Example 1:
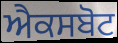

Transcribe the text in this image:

ਐਕਸਬੋਟ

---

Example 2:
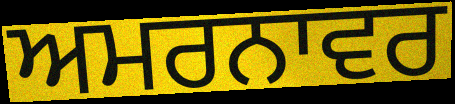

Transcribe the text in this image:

ਅਮਰਨਾਵਰ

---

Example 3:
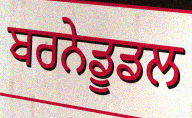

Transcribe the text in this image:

ਬਰਨੇਡੂਡਲ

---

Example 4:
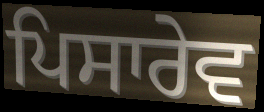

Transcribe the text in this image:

ਪਿਸਾਰੇਵ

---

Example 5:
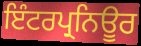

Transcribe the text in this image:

ਇੰਟਰਪ੍ਰਨਿਊਰ